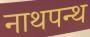
नाथपन्थ